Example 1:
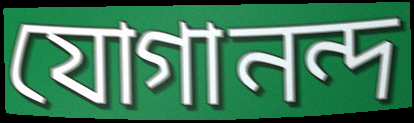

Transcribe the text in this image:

যোগানন্দ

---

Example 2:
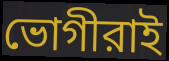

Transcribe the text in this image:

ভোগীরাই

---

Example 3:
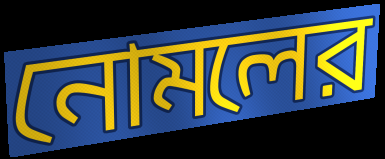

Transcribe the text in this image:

নোমলের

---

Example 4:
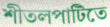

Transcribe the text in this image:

শীতলপাটিতে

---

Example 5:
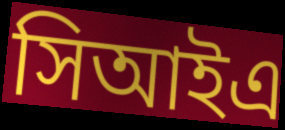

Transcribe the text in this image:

সিআইএ